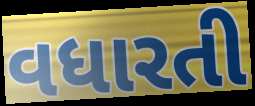
વધારતી